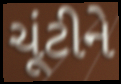
ચૂંટીને